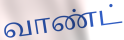
வாண்ட்